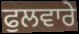
ਫੁਲਵਾਰੇ